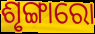
ଶୃଙ୍ଗାରୋ